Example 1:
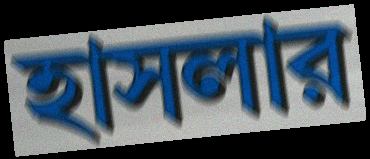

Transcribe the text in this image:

হাসলার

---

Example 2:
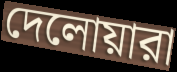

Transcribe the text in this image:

দেলোয়ারা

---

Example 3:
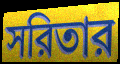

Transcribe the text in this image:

সরিতার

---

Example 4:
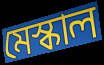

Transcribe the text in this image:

মেস্কাল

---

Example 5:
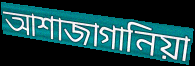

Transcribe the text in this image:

আশাজাগানিয়া